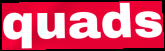
quads